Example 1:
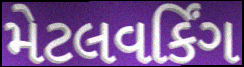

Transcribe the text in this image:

મેટલવર્કિંગ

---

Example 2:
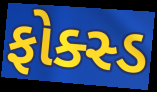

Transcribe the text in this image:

ફોક્સ્ડ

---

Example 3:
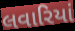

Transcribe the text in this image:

લવારિયાં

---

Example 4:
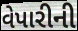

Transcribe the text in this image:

વેપારીની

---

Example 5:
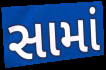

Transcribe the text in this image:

સામાં